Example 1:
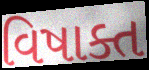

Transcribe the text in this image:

વિષાક્ત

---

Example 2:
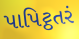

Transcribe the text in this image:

પાપિટ્ઠતરં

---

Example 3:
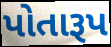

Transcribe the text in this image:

પોતારૂપ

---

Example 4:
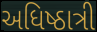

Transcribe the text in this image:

અધિષ્ઠાત્રી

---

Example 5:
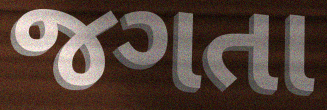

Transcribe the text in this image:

જગતા